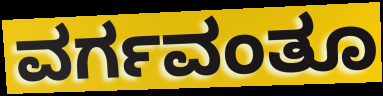
ವರ್ಗವಂತೂ